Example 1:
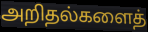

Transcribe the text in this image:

அறிதல்களைத்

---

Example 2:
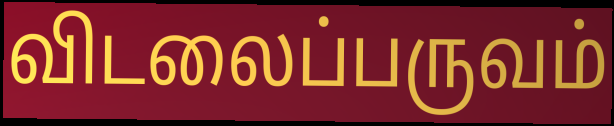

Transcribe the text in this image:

விடலைப்பருவம்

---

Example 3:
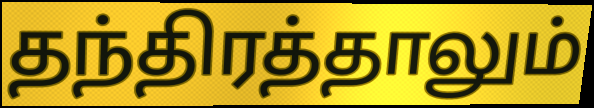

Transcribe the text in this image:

தந்திரத்தாலும்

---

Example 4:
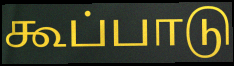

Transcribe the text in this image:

கூப்பாடு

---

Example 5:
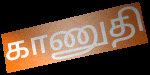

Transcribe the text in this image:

காணுதி